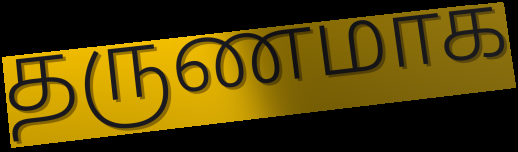
தருணமாக